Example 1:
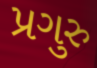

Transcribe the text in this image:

પ્રગુરુ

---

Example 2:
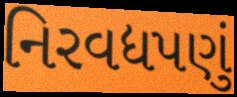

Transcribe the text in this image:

નિરવદ્યપણું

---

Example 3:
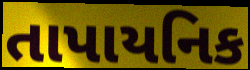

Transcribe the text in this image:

તાપાયનિક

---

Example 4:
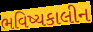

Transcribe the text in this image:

ભવિષ્યકાલીન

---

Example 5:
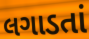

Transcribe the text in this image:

લગાડતાં